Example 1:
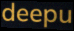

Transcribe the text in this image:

deepu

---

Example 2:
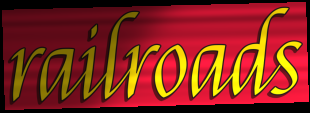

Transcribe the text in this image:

railroads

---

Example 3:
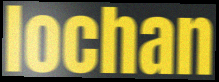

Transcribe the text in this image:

lochan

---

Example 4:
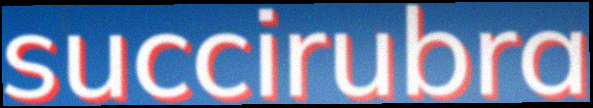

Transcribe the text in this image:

succirubra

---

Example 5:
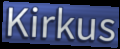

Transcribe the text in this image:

Kirkus